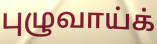
புழுவாய்க்